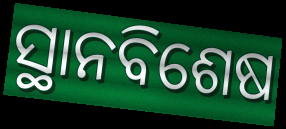
ସ୍ଥାନବିଶେଷ